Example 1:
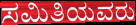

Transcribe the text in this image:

ಸಮಿತಿಯವರು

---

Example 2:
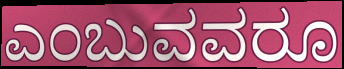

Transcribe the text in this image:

ಎಂಬುವವರೂ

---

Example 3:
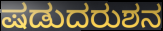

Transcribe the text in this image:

ಷಡುದರುಶನ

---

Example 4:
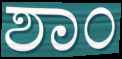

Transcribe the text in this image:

ಶಾಂ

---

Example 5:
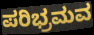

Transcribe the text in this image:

ಪರಿಭ್ರಮವ